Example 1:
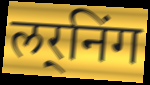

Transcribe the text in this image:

लर्निंग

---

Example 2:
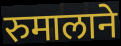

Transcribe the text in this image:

रुमालाने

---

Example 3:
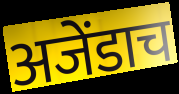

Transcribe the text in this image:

अजेंडाच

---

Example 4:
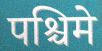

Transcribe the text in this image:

पश्चिमे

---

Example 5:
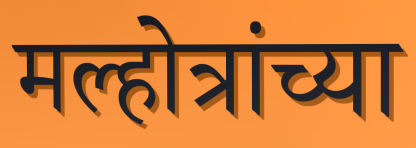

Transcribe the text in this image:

मल्होत्रांच्या